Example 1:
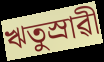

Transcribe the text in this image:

ঋতুস্ৰাৱী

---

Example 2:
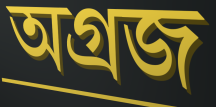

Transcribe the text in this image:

অগ্ৰজ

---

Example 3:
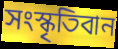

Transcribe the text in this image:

সংস্কৃতিবান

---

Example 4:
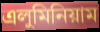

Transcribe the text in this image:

এলুমিনিয়াম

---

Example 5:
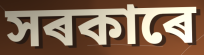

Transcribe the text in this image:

সৰকাৰে